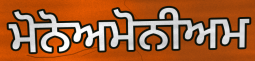
ਮੋਨੋਅਮੋਨੀਅਮ